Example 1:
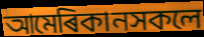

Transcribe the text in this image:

আমেৰিকানসকলে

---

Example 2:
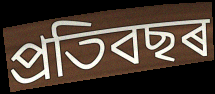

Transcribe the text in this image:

প্ৰতিবছৰ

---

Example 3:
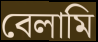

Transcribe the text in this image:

বেলামি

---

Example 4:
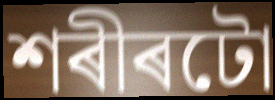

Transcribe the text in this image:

শৰীৰটো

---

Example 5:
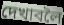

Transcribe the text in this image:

দেখাবলৈ